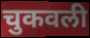
चुकवली